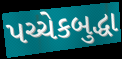
પચ્ચેકબુદ્ધા